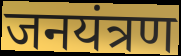
जनयंत्रण